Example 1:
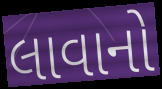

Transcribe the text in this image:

લાવાનો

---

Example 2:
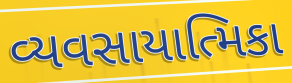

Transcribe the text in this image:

વ્યવસાયાત્મિકા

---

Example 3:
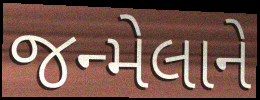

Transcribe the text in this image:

જન્મેલાને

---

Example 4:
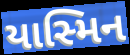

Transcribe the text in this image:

યાસ્મિન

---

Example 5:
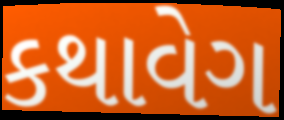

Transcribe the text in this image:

કથાવેગ